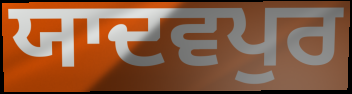
ਯਾਦਵਪੁਰ